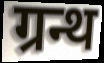
ग्रन्थ